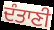
ਦੰਤਾਣੀ